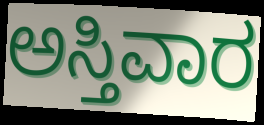
ಅಸ್ತಿವಾರ